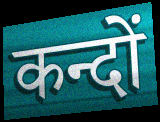
कन्दों